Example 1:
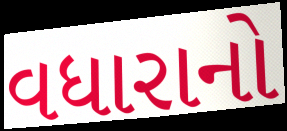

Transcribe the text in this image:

વધારાનો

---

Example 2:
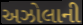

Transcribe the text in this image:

અઝોલાની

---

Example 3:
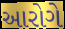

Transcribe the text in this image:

આરોગે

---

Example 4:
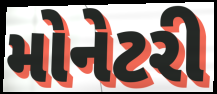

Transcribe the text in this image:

મોનેટરી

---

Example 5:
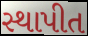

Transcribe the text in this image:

સ્થાપીત